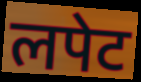
लपेट